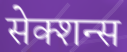
सेक्शन्स